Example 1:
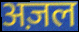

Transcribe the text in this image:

अज़ल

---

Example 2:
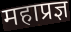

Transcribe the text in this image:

महाप्रज्ञ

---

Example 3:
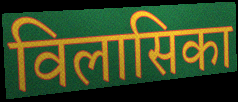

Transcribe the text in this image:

विलासिका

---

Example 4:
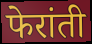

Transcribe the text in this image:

फेरांती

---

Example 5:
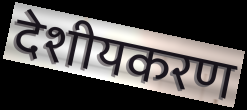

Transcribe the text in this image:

देशीयकरण